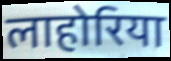
लाहोरिया